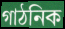
গাঠনিক